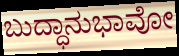
ಬುದ್ಧಾನುಭಾವೋ